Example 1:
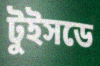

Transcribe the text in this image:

টুইসডে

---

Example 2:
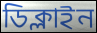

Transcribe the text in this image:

ডিক্লাইন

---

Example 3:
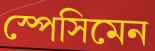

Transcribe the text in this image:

স্পেসিমেন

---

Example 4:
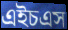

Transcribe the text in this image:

এইচএস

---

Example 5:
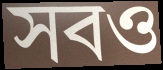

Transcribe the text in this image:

সবও